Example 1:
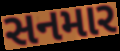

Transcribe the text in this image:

સનમાર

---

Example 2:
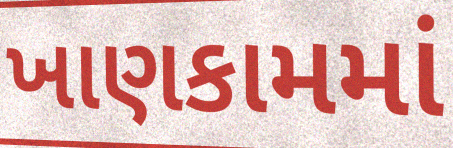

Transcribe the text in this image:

ખાણકામમાં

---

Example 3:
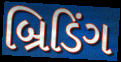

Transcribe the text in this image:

બ્રિડિંગ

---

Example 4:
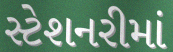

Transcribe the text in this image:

સ્ટેશનરીમાં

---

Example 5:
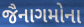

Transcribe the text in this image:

જૈનાગમોના